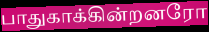
பாதுகாக்கின்றனரோ